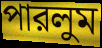
পারলুম